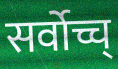
सर्वोच्च्